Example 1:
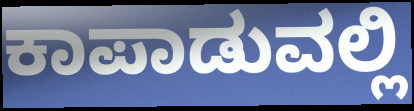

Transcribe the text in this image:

ಕಾಪಾಡುವಲ್ಲಿ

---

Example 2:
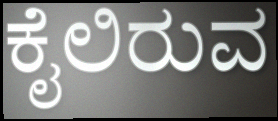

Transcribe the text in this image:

ಕೈಲಿರುವ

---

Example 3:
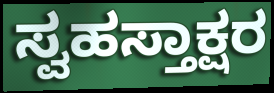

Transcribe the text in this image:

ಸ್ವಹಸ್ತಾಕ್ಷರ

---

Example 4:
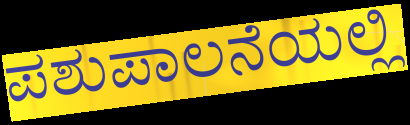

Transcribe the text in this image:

ಪಶುಪಾಲನೆಯಲ್ಲಿ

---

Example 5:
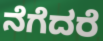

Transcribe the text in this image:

ನೆಗೆದರೆ